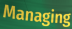
Managing